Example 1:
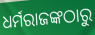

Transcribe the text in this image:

ଧର୍ମରାଜଙ୍କଠାରୁ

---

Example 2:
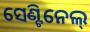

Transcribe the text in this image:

ସେଣ୍ଟିନେଲ୍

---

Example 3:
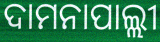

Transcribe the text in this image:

ଦାମନାପାଲ୍ଲୀ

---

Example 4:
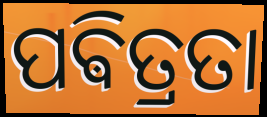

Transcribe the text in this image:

ପଵିତ୍ରତା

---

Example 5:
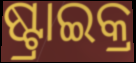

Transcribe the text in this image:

ଷ୍ଟ୍ରାଇକ୍ର